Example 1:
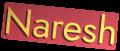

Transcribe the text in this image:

Naresh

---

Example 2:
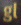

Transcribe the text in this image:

gl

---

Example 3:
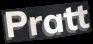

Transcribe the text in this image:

Pratt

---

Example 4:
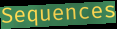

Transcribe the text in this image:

Sequences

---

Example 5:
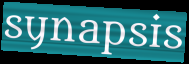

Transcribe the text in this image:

synapsis